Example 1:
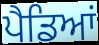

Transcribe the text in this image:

ਪੈਡਿਆਂ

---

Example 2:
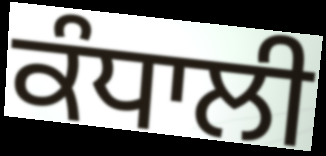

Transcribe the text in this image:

ਕੰਧਾਲੀ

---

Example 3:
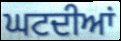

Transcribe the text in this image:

ਘਟਦੀਆਂ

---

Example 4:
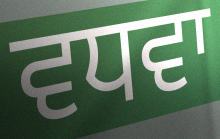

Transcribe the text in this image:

ਵਧਵਾ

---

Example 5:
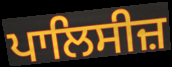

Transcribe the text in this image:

ਪਾਲਿਸੀਜ਼